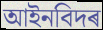
আইনবিদৰ